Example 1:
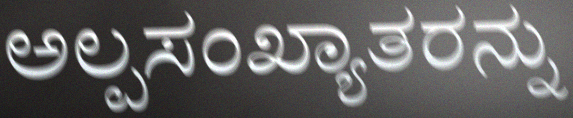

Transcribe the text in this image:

ಅಲ್ಪಸಂಖ್ಯಾತರನ್ನು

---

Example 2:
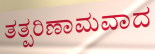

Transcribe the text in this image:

ತತ್ಪರಿಣಾಮವಾದ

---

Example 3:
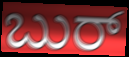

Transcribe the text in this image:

ಬುರ್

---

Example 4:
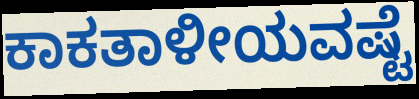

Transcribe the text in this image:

ಕಾಕತಾಳೀಯವಷ್ಟೆ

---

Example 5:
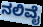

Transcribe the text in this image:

ನಲಿವೈ